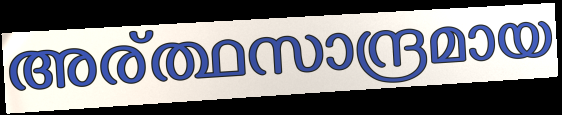
അര്ത്ഥസാന്ദ്രമായ